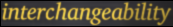
interchangeability